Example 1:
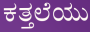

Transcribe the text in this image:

ಕತ್ತಲೆಯು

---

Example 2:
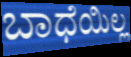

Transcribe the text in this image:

ಬಾಧೆಯಿಲ್ಲ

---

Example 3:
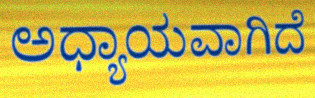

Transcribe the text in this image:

ಅಧ್ಯಾಯವಾಗಿದೆ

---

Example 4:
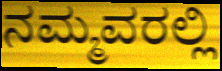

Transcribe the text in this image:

ನಮ್ಮವರಲ್ಲಿ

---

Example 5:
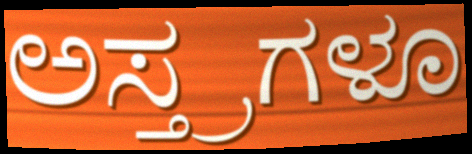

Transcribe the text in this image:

ಅಸ್ತ್ರಗಳೂ